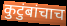
कुटुंबांचाच